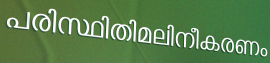
പരിസ്ഥിതിമലിനീകരണം